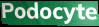
Podocyte